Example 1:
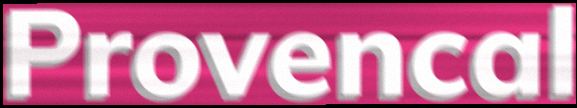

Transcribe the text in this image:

Provencal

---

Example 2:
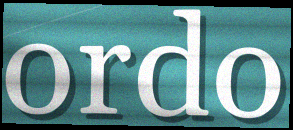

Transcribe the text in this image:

ordo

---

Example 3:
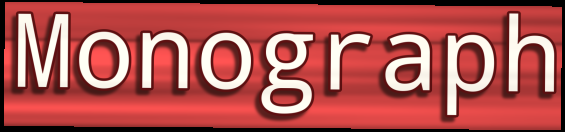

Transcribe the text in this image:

Monograph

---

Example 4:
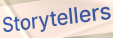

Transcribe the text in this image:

Storytellers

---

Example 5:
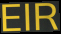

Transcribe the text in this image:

EIR